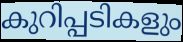
കുറിപ്പടികളും